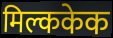
मिल्ककेक